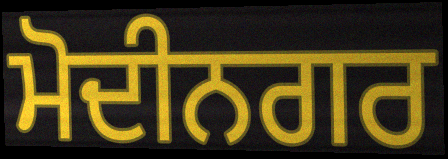
ਮੋਦੀਨਗਰ